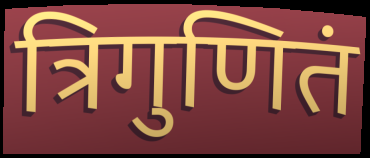
त्रिगुणितं